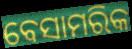
ବେସାମରିକ